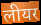
लीयर